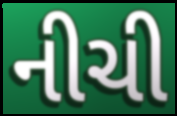
નીચી